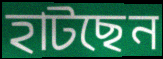
হাটছেন